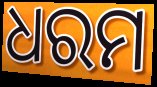
ଧରମ